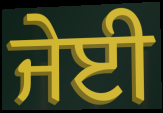
ਜੇਈ